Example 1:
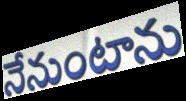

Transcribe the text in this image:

నేనుంటాను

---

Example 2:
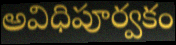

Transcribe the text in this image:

అవిధిపూర్వకం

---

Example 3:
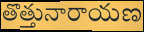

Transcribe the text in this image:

తొత్తునారాయణ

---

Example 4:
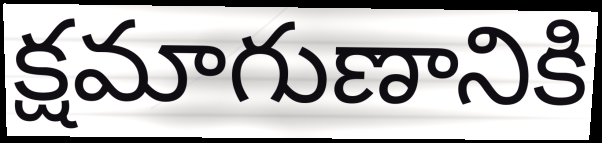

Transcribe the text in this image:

క్షమాగుణానికి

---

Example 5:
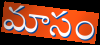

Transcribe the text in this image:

మాసం